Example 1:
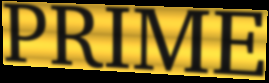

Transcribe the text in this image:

PRIME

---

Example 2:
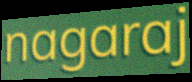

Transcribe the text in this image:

nagaraj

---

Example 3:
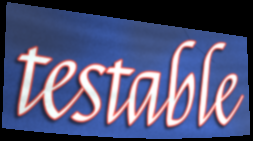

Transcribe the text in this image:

testable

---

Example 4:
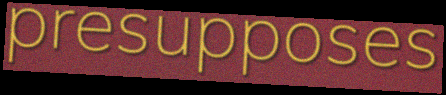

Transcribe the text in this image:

presupposes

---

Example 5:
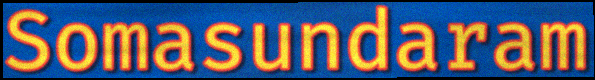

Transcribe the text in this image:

Somasundaram